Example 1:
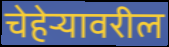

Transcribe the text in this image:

चेहेऱ्यावरील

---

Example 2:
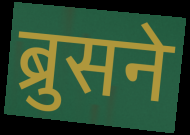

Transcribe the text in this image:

ब्रुसने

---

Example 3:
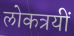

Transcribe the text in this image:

लोकत्रयीं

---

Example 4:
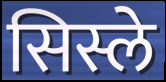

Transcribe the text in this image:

सिस्ले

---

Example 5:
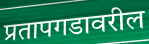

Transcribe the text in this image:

प्रतापगडावरील